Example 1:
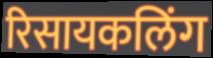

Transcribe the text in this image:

रिसायकलिंग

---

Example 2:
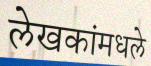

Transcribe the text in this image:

लेखकांमधले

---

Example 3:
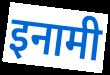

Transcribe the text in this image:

इनामी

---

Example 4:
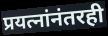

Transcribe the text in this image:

प्रयत्नांनंतरही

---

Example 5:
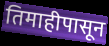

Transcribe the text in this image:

तिमाहीपासून